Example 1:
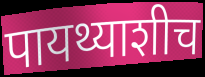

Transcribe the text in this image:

पायथ्याशीच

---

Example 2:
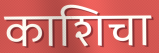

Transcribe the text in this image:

काशिचा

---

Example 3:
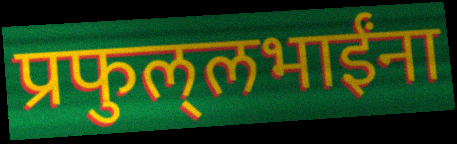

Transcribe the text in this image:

प्रफुल्लभाईंना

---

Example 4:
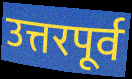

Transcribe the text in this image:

उत्तरपूर्व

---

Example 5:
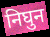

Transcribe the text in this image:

निघुन